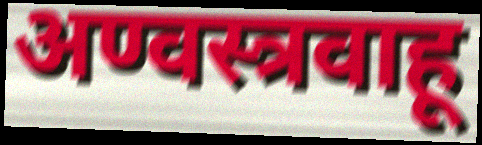
अण्वस्त्रवाहू